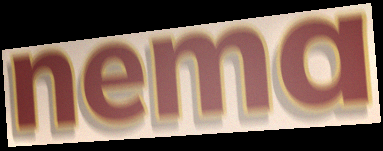
nema